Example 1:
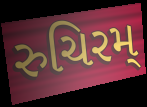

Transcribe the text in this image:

રુચિરમ્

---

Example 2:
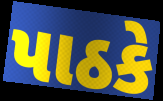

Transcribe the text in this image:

પાઠકે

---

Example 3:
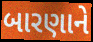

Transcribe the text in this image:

બારણાને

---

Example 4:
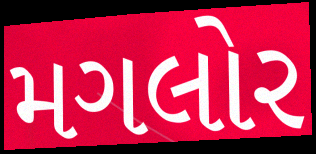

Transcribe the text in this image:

મગલોર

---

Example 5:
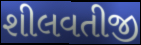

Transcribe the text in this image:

શીલવતીજી